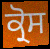
ਕ੍ਰੋਸ